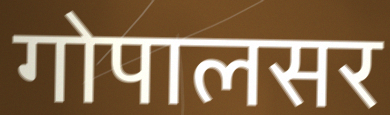
गोपालसर